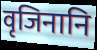
वृजिनानि